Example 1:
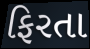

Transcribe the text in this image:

ફિરતા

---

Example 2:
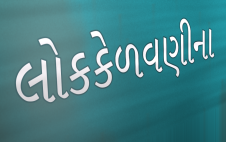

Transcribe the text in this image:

લોકકેળવણીના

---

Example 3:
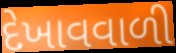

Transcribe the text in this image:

દેખાવવાળી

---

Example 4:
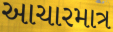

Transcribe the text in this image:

આચારમાત્ર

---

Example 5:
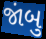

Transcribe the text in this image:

જાંબુ